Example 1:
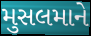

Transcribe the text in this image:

મુસલમાને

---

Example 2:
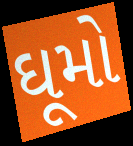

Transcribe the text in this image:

ઘૂમો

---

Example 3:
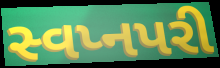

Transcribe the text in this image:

સ્વપ્નપરી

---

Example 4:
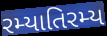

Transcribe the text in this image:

રમ્યાતિરમ્ય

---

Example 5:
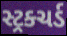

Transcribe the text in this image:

સ્ટ્રક્ચર્ડ